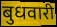
बुधवारी